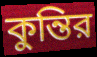
কুন্তির